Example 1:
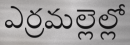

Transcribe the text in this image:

ఎర్రమల్లెల్లో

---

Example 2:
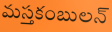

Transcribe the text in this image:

మస్తకంబులన్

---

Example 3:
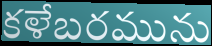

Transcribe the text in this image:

కళేబరమును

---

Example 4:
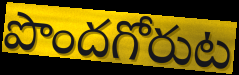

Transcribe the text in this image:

పొందగోరుట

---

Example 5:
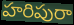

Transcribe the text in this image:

హరిపురా